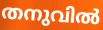
തനുവിൽ